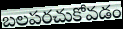
బలపరచుకోవడం